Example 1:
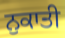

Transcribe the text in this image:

ਨੁਕਾਤੀ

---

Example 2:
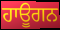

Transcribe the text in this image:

ਹਾਊਗਨ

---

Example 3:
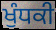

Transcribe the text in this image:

ਖੁੰਧਕੀ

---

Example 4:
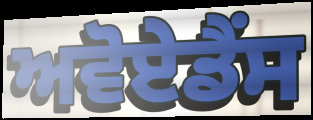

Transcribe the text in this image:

ਅਵੋਏਡੈਂਸ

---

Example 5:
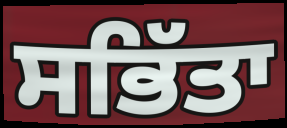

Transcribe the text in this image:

ਸਭਿੱਤਾ